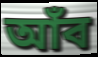
আঁব